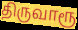
திருவாரூ